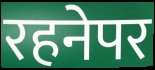
रहनेपर